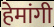
हेमांगी